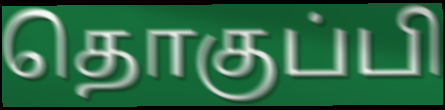
தொகுப்பி